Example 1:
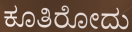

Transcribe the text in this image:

ಕೂತಿರೋದು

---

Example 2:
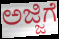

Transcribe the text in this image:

ಅಜ್ಜಿಗೆ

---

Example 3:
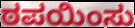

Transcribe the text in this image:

ಠಪಯಿಂಸು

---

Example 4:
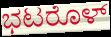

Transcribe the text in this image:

ಭಟರೊಳ್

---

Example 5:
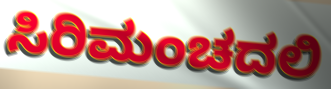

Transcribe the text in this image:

ಸಿರಿಮಂಚದಲಿ